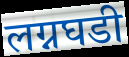
लग्नघडी